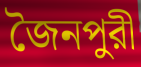
জৈনপুরী